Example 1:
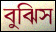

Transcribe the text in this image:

বুঝিস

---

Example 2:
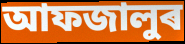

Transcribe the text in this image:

আফজালুৰ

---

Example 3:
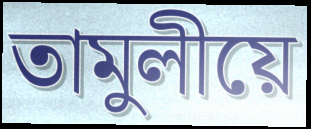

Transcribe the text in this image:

তামুলীয়ে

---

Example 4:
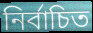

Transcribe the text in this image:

নিৰ্বাচিত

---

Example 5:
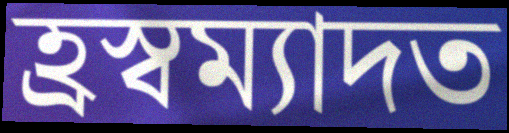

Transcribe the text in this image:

হ্ৰস্বম্যাদত